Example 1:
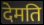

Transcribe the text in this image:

देमति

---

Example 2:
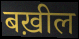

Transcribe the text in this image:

बख़ील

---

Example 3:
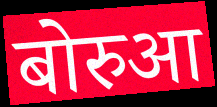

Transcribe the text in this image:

बोरुआ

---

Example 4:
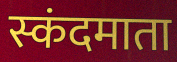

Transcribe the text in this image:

स्‍कंदमाता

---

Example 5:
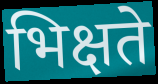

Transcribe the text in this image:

भिक्षते